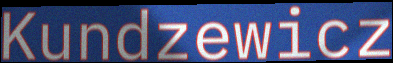
Kundzewicz